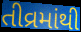
તીવ્રમાંથી